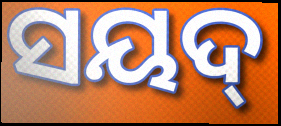
ସୟଦ୍